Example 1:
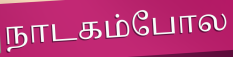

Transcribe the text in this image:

நாடகம்போல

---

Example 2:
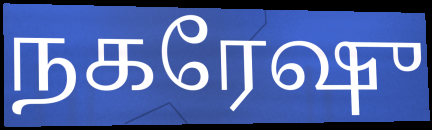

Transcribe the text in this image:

நகரேஷு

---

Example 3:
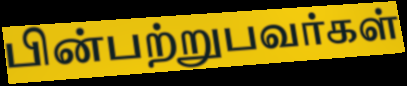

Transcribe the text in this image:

பின்பற்றுபவர்கள்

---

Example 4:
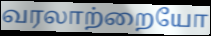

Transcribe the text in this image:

வரலாற்றையோ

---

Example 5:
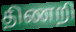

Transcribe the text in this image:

திணறி